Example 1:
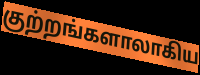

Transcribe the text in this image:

குற்றங்களாலாகிய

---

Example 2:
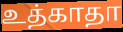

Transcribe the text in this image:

உத்காதா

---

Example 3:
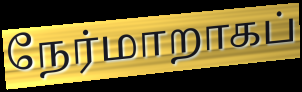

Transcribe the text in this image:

நேர்மாறாகப்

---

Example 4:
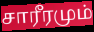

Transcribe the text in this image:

சாரீரமும்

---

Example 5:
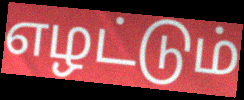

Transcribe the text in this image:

எழட்டும்